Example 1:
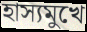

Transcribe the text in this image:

হাস্যমুখে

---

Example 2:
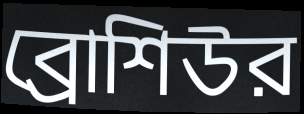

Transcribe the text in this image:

ব্রোশিউর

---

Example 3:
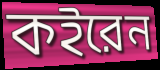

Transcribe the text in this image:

কইরেন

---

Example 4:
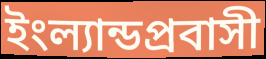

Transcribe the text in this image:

ইংল্যান্ডপ্রবাসী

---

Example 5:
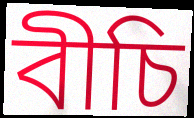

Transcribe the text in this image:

বীচি